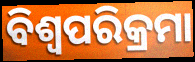
ବିଶ୍ୱପରିକ୍ରମା